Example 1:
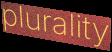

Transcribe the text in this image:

plurality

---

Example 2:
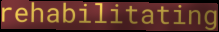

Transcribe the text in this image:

rehabilitating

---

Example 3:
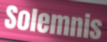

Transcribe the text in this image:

Solemnis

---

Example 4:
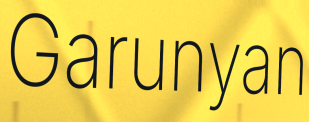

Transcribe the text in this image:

Garunyan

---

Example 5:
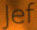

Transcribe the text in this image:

Jef